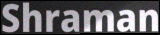
Shraman